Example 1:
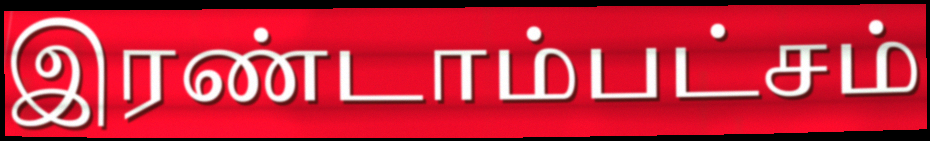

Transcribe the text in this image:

இரண்டாம்பட்சம்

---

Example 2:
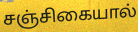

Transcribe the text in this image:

சஞ்சிகையால்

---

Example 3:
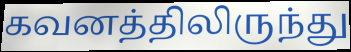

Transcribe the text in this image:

கவனத்திலிருந்து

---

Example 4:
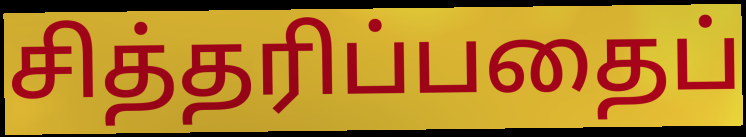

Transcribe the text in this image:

சித்தரிப்பதைப்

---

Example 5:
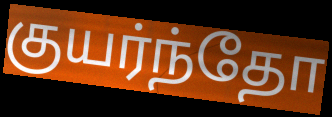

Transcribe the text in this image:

குயர்ந்தோ